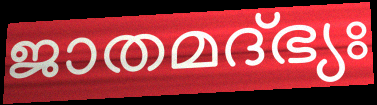
ജാതമദ്ഭ്യഃ